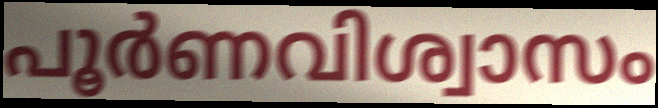
പൂർണവിശ്വാസം